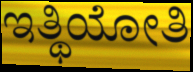
ಇತ್ಥಿಯೋತಿ